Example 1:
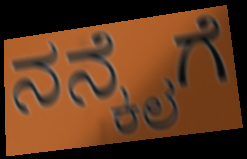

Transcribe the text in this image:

ನನ್ಕೈಗೆ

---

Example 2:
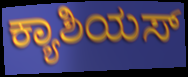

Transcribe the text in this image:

ಕ್ಯಾಶಿಯಸ್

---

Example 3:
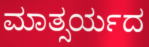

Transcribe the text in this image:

ಮಾತ್ಸರ್ಯದ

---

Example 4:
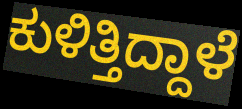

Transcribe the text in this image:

ಕುಳಿತ್ತಿದ್ದಾಳೆ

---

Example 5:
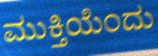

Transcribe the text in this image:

ಮುಕ್ತಿಯೆಂದು